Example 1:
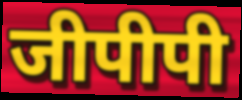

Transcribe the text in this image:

जीपीपी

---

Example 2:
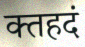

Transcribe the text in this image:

क्तहदं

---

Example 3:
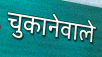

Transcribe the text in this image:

चुकानेवाले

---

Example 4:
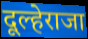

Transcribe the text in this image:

दूल्हेराजा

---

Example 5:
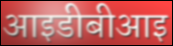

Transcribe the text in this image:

आइडीबीआइ